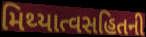
મિથ્યાત્વસહિતની